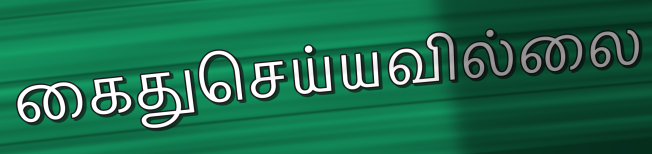
கைதுசெய்யவில்லை